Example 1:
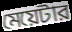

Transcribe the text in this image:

মেয়েটার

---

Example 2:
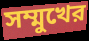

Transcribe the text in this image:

সম্মুখের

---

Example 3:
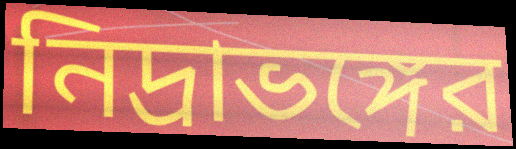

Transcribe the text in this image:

নিদ্রাভঙ্গের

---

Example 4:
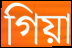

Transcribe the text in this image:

গিয়া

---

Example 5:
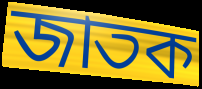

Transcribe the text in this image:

জাতক